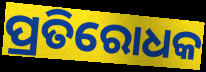
ପ୍ରତିରୋଧକ